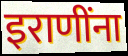
इराणींना